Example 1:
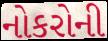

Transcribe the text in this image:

નોકરોની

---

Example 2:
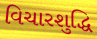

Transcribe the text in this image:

વિચારશુદ્ધિ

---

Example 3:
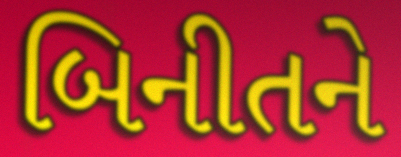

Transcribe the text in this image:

બિનીતને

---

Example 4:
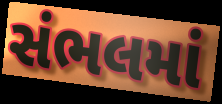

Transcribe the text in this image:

સંભલમાં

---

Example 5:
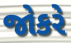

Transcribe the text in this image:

જોકરે